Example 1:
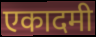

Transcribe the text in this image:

एकादमी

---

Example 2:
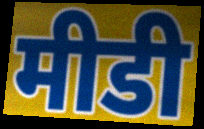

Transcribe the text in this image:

मीडी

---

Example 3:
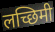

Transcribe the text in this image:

लच्छिमी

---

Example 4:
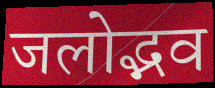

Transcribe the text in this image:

जलोद्भव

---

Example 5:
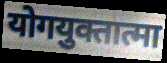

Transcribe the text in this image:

योगयुक्तात्मा